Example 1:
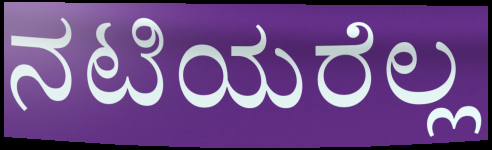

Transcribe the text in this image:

ನಟಿಯರೆಲ್ಲ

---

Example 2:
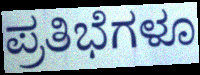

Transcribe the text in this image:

ಪ್ರತಿಭೆಗಳೂ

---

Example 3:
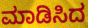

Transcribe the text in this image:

ಮಾಡಿಸಿದ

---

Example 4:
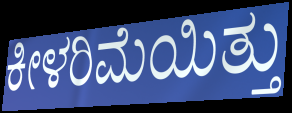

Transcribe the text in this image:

ಕೀಳರಿಮೆಯಿತ್ತು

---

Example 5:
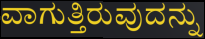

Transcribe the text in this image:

ವಾಗುತ್ತಿರುವುದನ್ನು